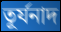
তূর্যনাদ